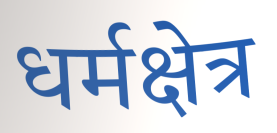
धर्मक्षेत्र